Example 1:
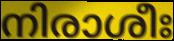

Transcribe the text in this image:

നിരാശീഃ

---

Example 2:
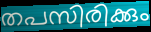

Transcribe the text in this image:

തപസിരിക്കും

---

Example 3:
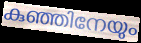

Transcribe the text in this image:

കുഞ്ഞിനേയും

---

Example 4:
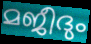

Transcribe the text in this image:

മജീദും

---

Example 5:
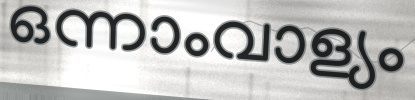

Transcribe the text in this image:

ഒന്നാംവാള്യം